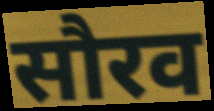
सौरव